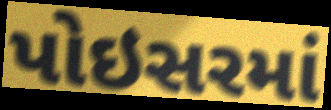
પોઇસરમાં